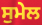
ਸੁਮੇਲ